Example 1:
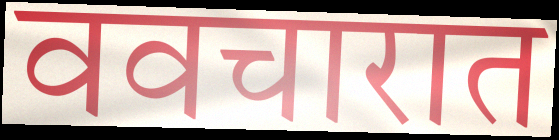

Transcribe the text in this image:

ववचारात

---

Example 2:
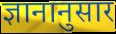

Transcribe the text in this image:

ज्ञानानुसार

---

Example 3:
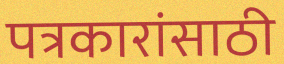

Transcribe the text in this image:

पत्रकारांसाठी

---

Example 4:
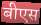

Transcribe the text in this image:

बीएस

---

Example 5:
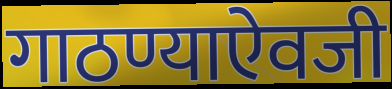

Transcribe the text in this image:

गाठण्याऐवजी